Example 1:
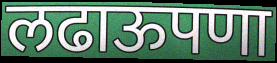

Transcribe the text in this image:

लढाऊपणा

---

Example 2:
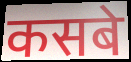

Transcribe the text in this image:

कसबे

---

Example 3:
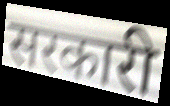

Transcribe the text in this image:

सरकारी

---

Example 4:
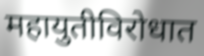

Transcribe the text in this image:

महायुतीविरोधात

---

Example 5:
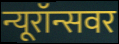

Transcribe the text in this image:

न्यूरॉन्सवर